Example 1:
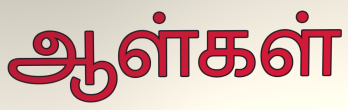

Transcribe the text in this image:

ஆள்கள்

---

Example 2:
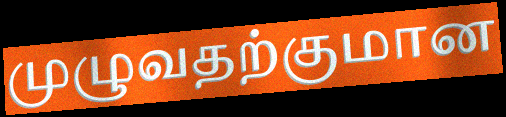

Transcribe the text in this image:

முழுவதற்குமான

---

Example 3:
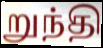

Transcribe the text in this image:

றுந்தி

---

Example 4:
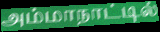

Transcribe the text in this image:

அம்மாநாட்டில்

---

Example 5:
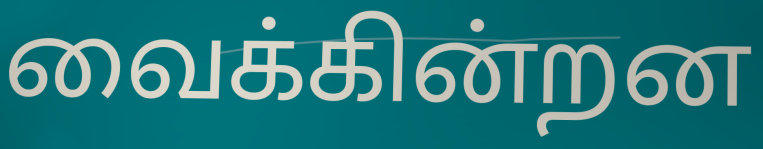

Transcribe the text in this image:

வைக்கின்றன